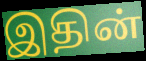
இதின்